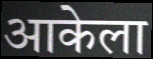
आकेला